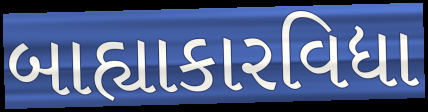
બાહ્યાકારવિદ્યા